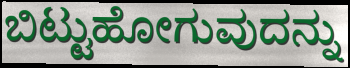
ಬಿಟ್ಟುಹೋಗುವುದನ್ನು